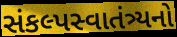
સંકલ્પસ્વાતંત્ર્યનો